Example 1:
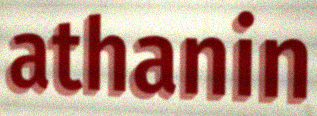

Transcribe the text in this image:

athanin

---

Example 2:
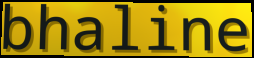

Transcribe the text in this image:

bhaline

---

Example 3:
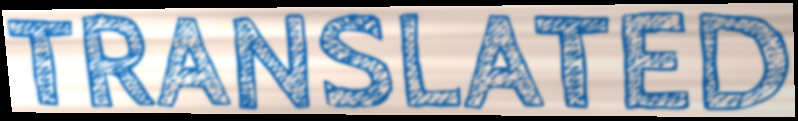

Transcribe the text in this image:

TRANSLATED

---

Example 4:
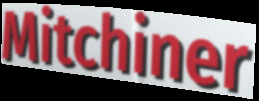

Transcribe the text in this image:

Mitchiner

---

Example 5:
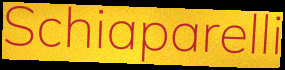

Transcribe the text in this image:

Schiaparelli